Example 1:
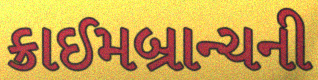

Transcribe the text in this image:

ક્રાઈમબ્રાન્ચની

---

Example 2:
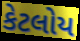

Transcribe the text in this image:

કેટલોય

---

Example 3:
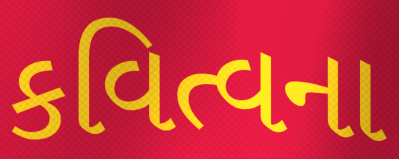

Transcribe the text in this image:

કવિત્વના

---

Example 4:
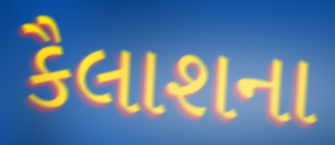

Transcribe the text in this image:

કૈલાશના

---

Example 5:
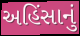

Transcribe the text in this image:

અહિંસાનું